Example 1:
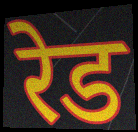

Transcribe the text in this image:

रेड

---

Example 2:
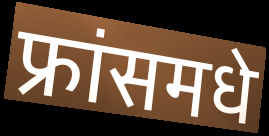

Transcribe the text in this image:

फ्रांसमधे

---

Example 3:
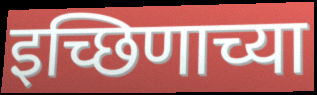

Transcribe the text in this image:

इच्छिणाच्या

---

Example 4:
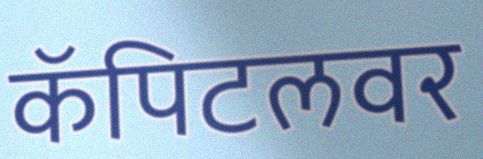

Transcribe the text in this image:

कॅपिटलवर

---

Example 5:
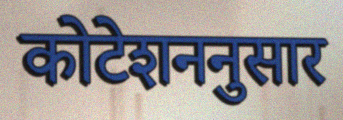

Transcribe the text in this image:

कोटेशननुसार